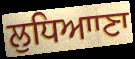
ਲੁਧਿਆਾਣਾ